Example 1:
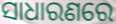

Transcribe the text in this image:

ସାଧାରଣରେ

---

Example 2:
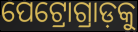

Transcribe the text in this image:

ପେଟ୍ରୋଗ୍ରାଡ଼କୁ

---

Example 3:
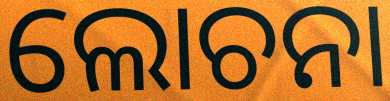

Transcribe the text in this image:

ଲୋଚନା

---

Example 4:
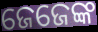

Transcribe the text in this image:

ଜେଜେଙ୍କ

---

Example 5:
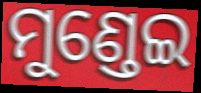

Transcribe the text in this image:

ମୁଣ୍ଡେଇ